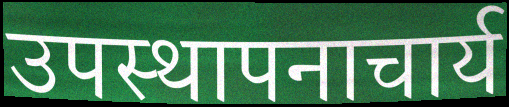
उपस्थापनाचार्य